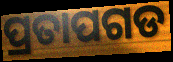
ପ୍ରତାପଗଡ